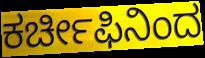
ಕರ್ಚೀಫಿನಿಂದ